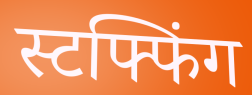
स्टफ्फिंग